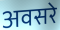
अवसरे